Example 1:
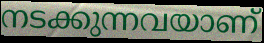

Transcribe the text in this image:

നടക്കുന്നവയാണ്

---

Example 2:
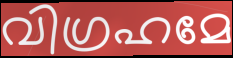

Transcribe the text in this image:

വിഗ്രഹമേ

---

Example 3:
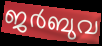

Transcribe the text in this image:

ജർബുവ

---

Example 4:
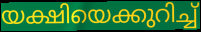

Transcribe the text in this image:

യക്ഷിയെക്കുറിച്ച്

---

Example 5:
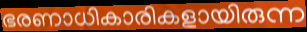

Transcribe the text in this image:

ഭരണാധികാരികളായിരുന്ന